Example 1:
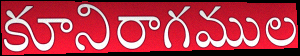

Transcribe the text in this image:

కూనిరాగముల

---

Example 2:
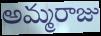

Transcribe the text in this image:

అమ్మరాజు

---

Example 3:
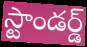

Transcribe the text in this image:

స్టాండర్డ్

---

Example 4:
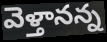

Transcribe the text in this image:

వెళ్తానన్న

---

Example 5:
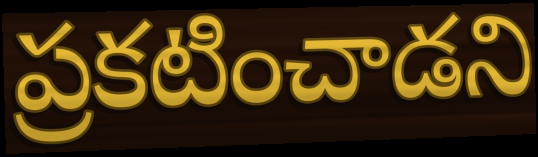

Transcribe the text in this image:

ప్రకటించాడని